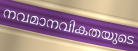
നവമാനവികതയുടെ